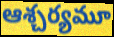
ఆశ్చర్యమూ